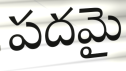
పదమై